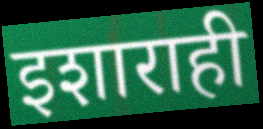
इशाराही